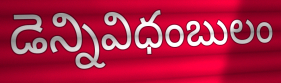
డెన్నివిధంబులం